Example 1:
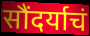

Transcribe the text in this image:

सौंदर्याचं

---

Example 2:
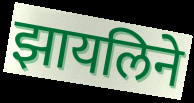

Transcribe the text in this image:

झायलिने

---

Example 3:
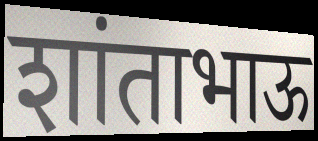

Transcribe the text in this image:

शांताभाऊ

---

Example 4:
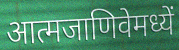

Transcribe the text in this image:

आत्मजाणिवेमध्यें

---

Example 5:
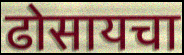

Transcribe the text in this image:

ढोसायचा